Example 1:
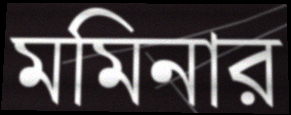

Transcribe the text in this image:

মমিনার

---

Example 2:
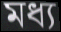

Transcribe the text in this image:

মধ্য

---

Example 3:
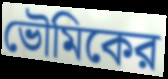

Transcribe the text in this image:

ভৌমিকের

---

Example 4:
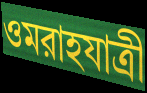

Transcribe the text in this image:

ওমরাহযাত্রী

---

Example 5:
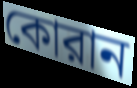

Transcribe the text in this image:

কোরান